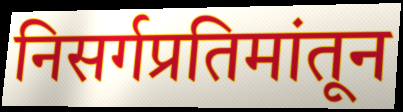
निसर्गप्रतिमांतून